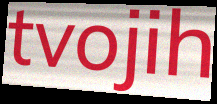
tvojih